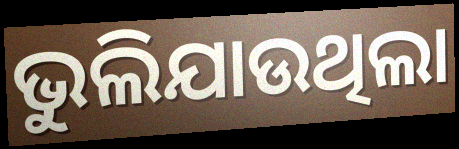
ଭୁଲିଯାଉଥିଲା